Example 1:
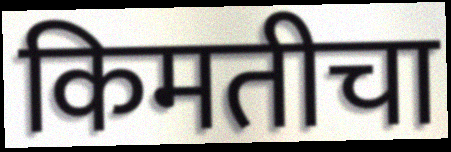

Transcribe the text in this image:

किमतीचा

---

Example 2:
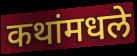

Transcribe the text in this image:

कथांमधले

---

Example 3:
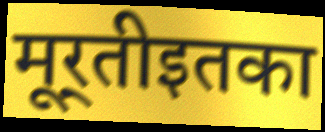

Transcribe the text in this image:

मूर्तीइतका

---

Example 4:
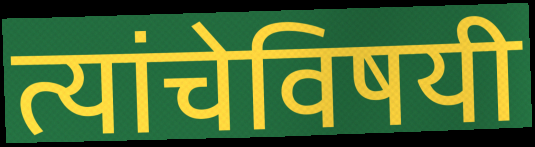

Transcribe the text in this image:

त्यांचेविषयी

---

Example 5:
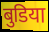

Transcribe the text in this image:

बुडिया